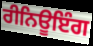
ਰੀਨਿਊਇੰਗ